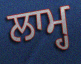
ਲਾਮ੍ਹ